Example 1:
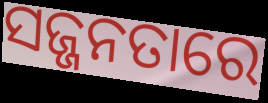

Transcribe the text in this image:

ସଜ୍ଜନତାରେ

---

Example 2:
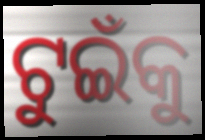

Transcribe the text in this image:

ଟୁଇଁକୁ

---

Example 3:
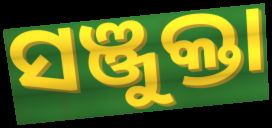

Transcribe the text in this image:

ସଞ୍ଜୁକ୍ତା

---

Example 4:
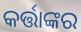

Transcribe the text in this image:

କର୍ତ୍ତାଙ୍କର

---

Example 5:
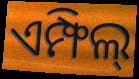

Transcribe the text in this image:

ଏମ୍ଫିଲ୍